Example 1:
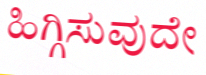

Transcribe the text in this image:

ಹಿಗ್ಗಿಸುವುದೇ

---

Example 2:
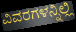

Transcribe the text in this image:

ವಿವರಗಳನ್ನಿಲ್ಲಿ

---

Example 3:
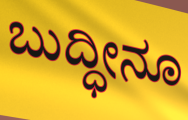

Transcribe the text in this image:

ಬುದ್ಧೀನೂ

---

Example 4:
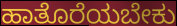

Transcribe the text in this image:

ಹಾತೊರೆಯಬೇಕು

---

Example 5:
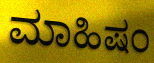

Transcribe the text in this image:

ಮಾಹಿಷಂ